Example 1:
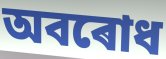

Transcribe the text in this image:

অবৰোধ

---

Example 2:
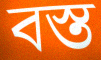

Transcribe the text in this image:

বস্ত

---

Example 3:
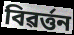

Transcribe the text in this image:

বিৱৰ্ত্তন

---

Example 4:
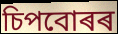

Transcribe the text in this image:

চিপবোৰৰ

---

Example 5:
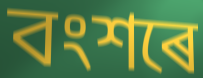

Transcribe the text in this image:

বংশৰে